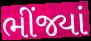
ભીંજ્યાં